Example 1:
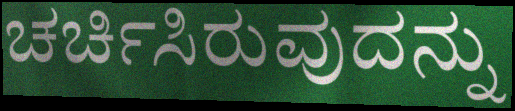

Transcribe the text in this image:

ಚರ್ಚಿಸಿರುವುದನ್ನು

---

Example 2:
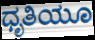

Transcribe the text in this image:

ಧೃತಿಯೂ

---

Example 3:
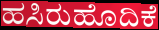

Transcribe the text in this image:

ಹಸಿರುಹೊದಿಕೆ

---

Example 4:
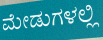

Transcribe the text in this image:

ಮೇಡುಗಳಲ್ಲಿ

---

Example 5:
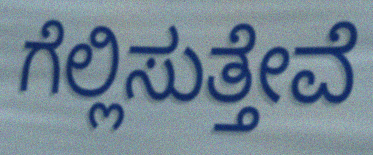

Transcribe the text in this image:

ಗೆಲ್ಲಿಸುತ್ತೇವೆ